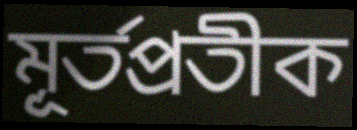
মূর্তপ্রতীক